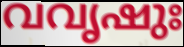
വവൃഷുഃ